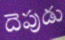
దెపుడు